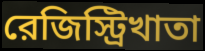
রেজিস্ট্রিখাতা